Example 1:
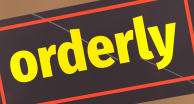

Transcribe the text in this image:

orderly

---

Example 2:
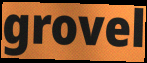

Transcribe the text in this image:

grovel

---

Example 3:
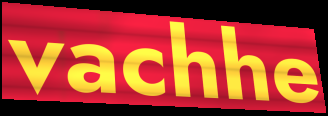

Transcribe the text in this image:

vachhe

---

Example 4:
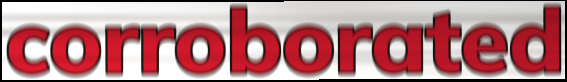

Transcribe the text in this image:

corroborated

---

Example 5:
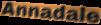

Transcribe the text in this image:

Annadale